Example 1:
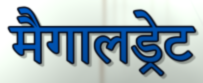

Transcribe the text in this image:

मैगालड्रेट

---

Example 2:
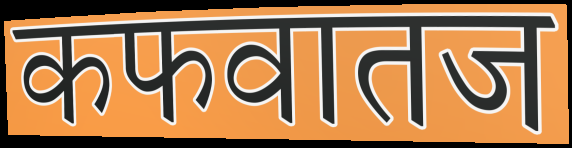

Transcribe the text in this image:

कफवातज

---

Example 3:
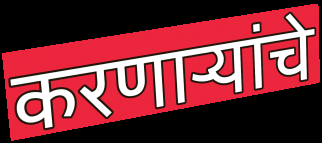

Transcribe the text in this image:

करणाऱ्यांचे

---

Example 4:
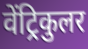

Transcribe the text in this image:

वेंट्रिकुलर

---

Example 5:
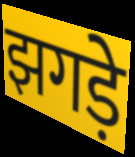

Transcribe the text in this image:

झगड़े